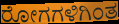
ರೋಗಗಳಿಗಿಂತ